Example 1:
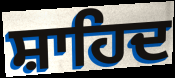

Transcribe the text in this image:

ਸ਼ਾਹਿਦ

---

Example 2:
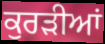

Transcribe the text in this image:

ਕੁਰੜੀਆਂ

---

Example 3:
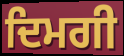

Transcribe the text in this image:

ਦਿਮਗੀ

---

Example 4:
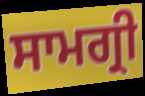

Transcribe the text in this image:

ਸਾਮਗ੍ਰੀ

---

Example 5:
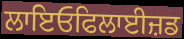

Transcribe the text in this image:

ਲਾਇਓਫਿਲਾਈਜ਼ਡ